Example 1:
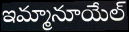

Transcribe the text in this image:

ఇమ్మానూయేల్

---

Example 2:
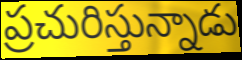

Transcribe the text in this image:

ప్రచురిస్తున్నాడు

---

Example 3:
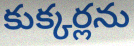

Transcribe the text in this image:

కుక్కర్లను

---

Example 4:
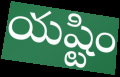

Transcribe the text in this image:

యష్టిం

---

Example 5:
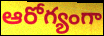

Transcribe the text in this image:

ఆరోగ్యంగా